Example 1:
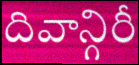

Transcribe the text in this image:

దివాన్గిరీ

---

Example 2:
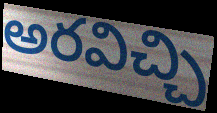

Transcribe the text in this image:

అరవిచ్చి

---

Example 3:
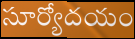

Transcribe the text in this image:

సూర్యోదయం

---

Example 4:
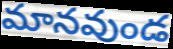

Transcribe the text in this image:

మానవుండ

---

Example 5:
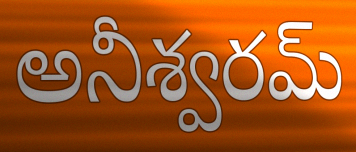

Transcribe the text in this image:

అనీశ్వరమ్